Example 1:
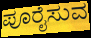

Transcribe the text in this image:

ಪೂರೈಸುವ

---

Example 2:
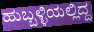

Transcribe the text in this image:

ಹುಬ್ಬಳ್ಳಿಯಲ್ಲಿದ್ದ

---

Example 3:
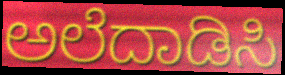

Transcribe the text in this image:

ಅಲೆದಾಡಿಸಿ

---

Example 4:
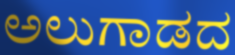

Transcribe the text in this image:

ಅಲುಗಾಡದ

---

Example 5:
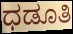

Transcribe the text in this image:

ಧಡೂತಿ